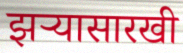
झर्‍यासारखी